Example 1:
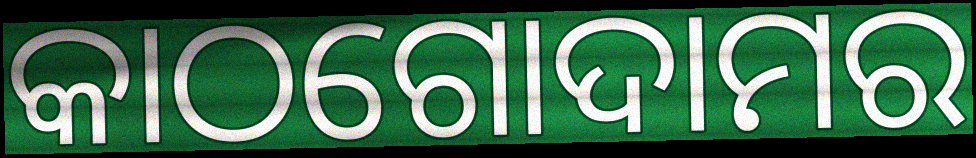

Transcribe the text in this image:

କାଠଗୋଦାମର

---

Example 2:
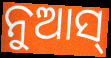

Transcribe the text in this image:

ନୁଆସ୍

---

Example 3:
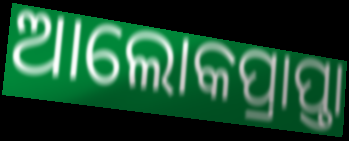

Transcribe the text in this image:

ଆଲୋକପ୍ରାପ୍ତା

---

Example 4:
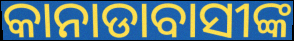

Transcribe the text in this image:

କାନାଡାବାସୀଙ୍କ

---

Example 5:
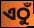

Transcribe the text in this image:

ଏଠୁଁ